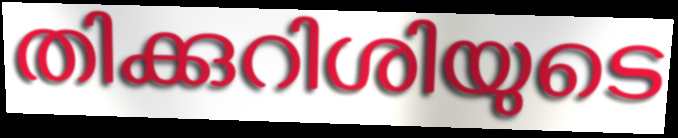
തിക്കുറിശിയുടെ